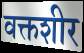
वक्तशीर